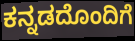
ಕನ್ನಡದೊಂದಿಗೆ